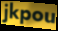
jkpou